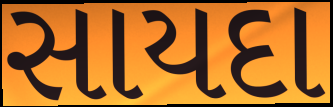
સાયદા